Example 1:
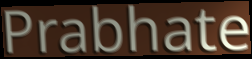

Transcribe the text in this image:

Prabhate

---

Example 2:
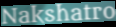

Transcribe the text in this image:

Nakshatro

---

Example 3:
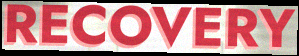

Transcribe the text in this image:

RECOVERY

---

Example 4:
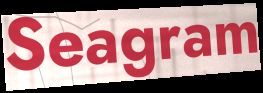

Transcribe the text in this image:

Seagram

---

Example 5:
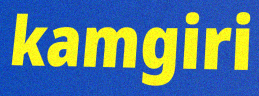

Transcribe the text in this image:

kamgiri